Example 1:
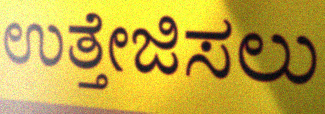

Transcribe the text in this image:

ಉತ್ತೇಜಿಸಲು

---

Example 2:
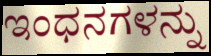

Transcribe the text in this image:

ಇಂಧನಗಳನ್ನು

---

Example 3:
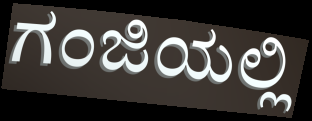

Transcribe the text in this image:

ಗಂಜಿಯಲ್ಲಿ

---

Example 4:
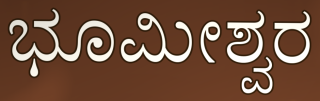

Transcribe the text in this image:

ಭೂಮೀಶ್ವರ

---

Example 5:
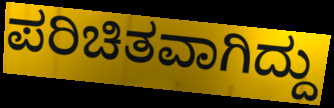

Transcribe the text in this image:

ಪರಿಚಿತವಾಗಿದ್ದು